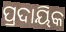
ପ୍ରଦାୟିକ